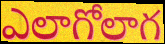
ఎలాగోలాగ